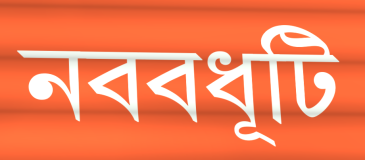
নববধূটি